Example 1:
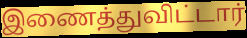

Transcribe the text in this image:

இணைத்துவிட்டார்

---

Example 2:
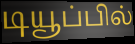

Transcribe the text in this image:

டியூப்பில்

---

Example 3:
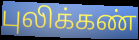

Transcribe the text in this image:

புலிக்கண்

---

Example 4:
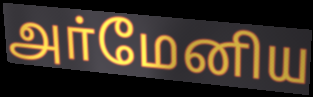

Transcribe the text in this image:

அர்மேனிய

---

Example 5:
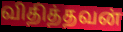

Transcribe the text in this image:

விதித்தவன்